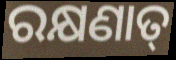
ରକ୍ଷଣାତ୍